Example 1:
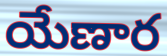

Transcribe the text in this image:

యేణార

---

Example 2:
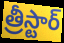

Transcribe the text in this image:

త్రీస్టార్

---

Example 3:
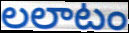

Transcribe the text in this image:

లలాటం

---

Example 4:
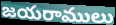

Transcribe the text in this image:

జయరాములు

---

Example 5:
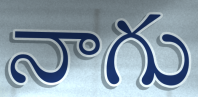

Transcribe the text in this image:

నాగు